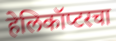
हेलिकॉप्टरचा